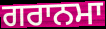
ਗਰਾਨਮਾ